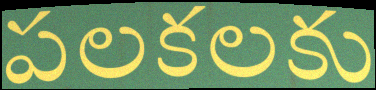
పలకలకు